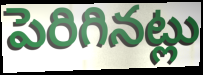
పెరిగినట్లు